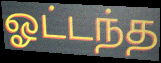
ஓட்டந்த